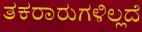
ತಕರಾರುಗಳಿಲ್ಲದೆ